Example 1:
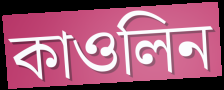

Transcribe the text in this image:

কাওলিন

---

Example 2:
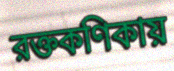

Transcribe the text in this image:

রক্তকণিকায়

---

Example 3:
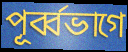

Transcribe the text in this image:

পূর্ব্বভাগে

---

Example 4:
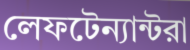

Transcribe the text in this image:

লেফটেন্যান্টরা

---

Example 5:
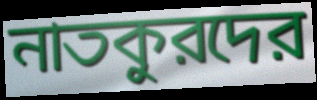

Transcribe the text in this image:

নাতকুরদের